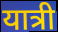
यात्री